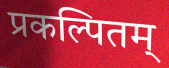
प्रकल्पितम्